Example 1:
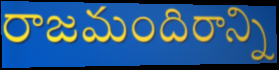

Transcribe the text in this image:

రాజమందిరాన్ని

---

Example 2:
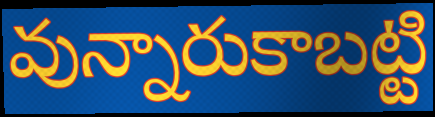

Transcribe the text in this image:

వున్నారుకాబట్టి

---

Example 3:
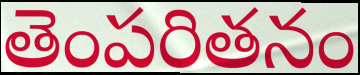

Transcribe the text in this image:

తెంపరితనం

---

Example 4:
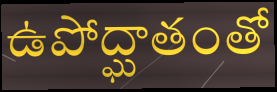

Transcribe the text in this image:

ఉపోద్ఘాతంతో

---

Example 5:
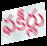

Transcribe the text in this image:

ఫకీర్లు